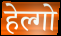
हेल्गो